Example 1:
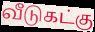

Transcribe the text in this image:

வீடுகட்கு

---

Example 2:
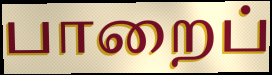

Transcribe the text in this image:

பாறைப்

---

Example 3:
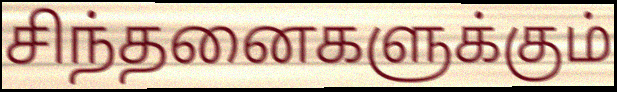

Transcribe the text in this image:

சிந்தனைகளுக்கும்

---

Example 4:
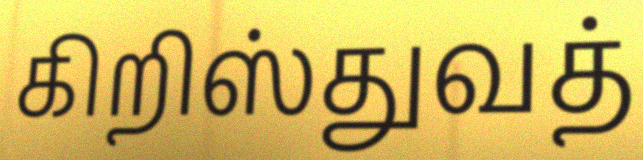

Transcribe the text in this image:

கிறிஸ்துவத்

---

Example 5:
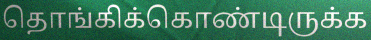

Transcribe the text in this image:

தொங்கிக்கொண்டிருக்க